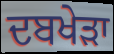
ਦਬਖੇੜਾ